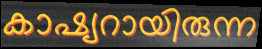
കാഷ്യറായിരുന്ന